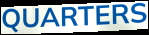
QUARTERS